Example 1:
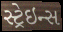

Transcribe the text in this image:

સ્ટ્રેઇન્સ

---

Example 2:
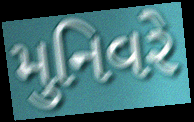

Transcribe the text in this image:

મુનિવરે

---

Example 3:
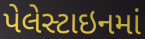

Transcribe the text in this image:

પેલેસ્ટાઇનમાં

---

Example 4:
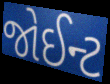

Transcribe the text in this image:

જોઈન્ટ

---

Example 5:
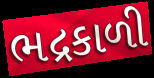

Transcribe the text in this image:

ભદ્રકાળી